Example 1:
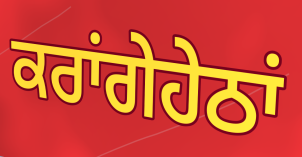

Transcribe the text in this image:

ਕਰਾਂਗੇਹੇਠਾਂ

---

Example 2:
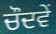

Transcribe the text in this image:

ਚੌਦਵੇਂ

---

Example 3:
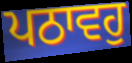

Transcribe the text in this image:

ਪਠਾਵਹੁ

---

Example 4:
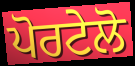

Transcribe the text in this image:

ਪੋਰਟੇਲੋ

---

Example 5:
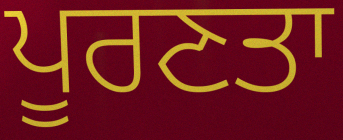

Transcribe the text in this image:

ਪੂਰਣਤਾ